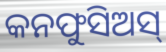
କନଫୁସିଅସ୍